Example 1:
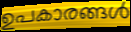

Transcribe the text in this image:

ഉപകാരങ്ങൾ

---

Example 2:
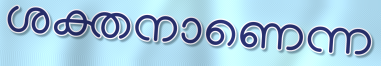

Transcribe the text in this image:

ശക്തനാണെന്ന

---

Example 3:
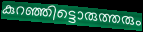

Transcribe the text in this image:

കുറഞ്ഞിട്ടൊരുത്തരും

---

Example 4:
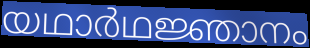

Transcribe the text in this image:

യഥാർഥജ്ഞാനം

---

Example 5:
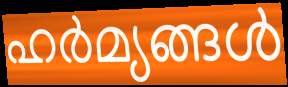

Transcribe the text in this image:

ഹർമ്യങ്ങൾ